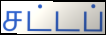
சட்டப்